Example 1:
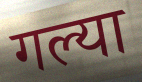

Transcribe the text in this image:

गल्या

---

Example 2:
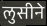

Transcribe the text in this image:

लुसीने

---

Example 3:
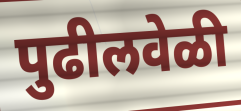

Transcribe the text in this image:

पुढीलवेळी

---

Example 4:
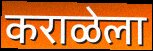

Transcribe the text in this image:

कराळेला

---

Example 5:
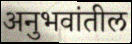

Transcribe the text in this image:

अनुभवांतील